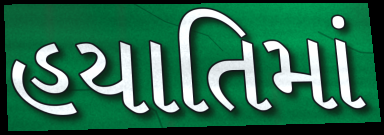
હયાતિમાં